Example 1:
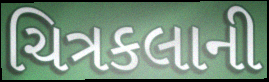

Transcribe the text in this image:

ચિત્રકલાની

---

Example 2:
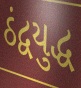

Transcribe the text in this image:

ઠંદ્વયુદ્ધ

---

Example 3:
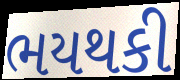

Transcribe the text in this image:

ભયથકી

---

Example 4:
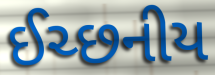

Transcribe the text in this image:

ઈચ્છનીય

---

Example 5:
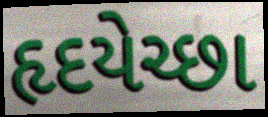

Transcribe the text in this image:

હૃદયેચ્છા